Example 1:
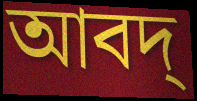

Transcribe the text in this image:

আবদ্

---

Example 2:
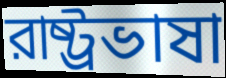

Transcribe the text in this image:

রাষ্ট্রভাষা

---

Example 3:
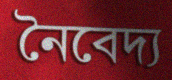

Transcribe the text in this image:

নৈবেদ্য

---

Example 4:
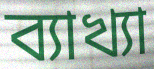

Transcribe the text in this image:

ব্যাখ্যা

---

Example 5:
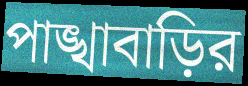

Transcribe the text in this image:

পাঙ্খাবাড়ির